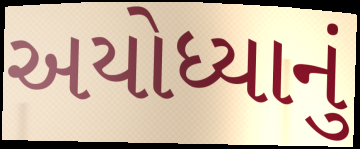
અયોધ્યાનું